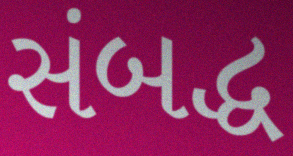
સંબદ્ધ